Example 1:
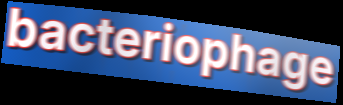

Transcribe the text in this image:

bacteriophage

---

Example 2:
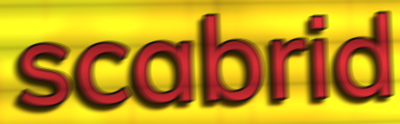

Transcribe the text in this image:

scabrid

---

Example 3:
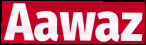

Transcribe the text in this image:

Aawaz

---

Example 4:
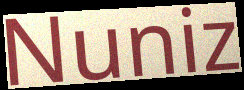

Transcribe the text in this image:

Nuniz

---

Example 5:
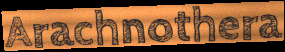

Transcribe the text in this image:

Arachnothera